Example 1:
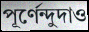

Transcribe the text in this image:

পূর্ণেন্দুদাও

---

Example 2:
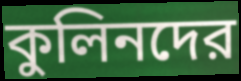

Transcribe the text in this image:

কুলিনদের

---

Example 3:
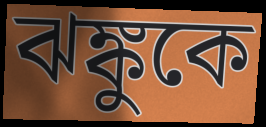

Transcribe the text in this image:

ঝঙ্কুকে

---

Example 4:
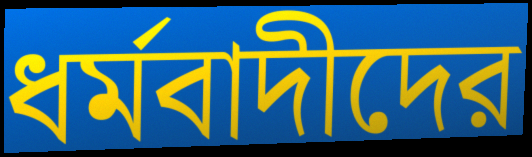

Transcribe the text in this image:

ধর্মবাদীদের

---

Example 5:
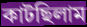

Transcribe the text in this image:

কাটছিলাম